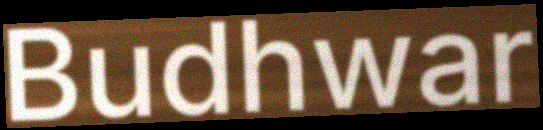
Budhwar